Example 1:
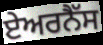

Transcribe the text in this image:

ਏਅਰਨੈੱਸ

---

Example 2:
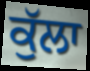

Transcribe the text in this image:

ਕੁੱਲਾ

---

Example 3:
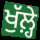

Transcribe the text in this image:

ਖੁੱਲ਼੍ਹੇ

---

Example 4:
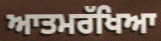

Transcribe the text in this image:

ਆਤਮਰੱਖਿਆ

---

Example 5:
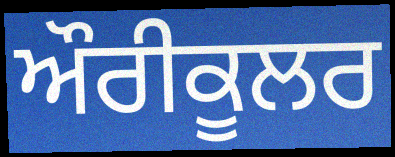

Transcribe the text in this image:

ਔਰੀਕੂਲਰ